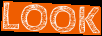
LOOK